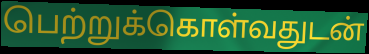
பெற்றுக்கொள்வதுடன்